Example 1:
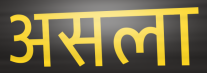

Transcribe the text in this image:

असला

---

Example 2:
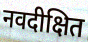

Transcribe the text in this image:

नवदीक्षित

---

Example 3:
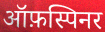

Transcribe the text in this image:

ऑफ़स्पिनर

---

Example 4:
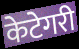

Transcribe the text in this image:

केटेगरी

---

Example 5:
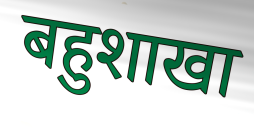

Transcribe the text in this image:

बहुशाखा